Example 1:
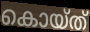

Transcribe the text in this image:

കൊയ്ത്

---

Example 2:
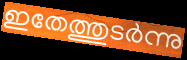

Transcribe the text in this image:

ഇതേത്തുടർന്നു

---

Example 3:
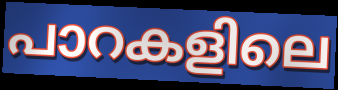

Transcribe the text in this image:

പാറകളിലെ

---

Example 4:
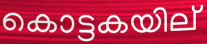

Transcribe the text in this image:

കൊട്ടകയില്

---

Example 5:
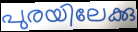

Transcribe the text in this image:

പുരയിലേക്കു